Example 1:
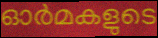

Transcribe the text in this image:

ഓർമകളുടെ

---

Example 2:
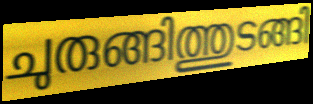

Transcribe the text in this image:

ചുരുങ്ങിത്തുടങ്ങി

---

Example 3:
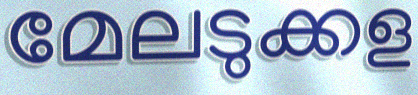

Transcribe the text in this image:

മേലടുക്കള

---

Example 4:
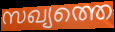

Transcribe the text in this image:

സഖ്യത്തെ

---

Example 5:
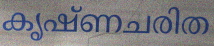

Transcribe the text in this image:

കൃഷ്ണചരിത